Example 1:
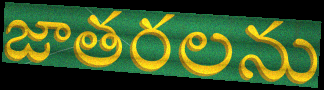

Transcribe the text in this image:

జాతరలను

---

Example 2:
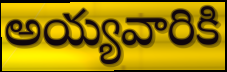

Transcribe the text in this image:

అయ్యవారికి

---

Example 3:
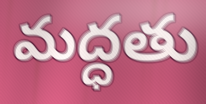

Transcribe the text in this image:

మద్ధతు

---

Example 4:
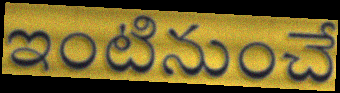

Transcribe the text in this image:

ఇంటినుంచే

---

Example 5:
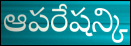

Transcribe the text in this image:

ఆపరేషన్కి